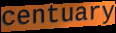
centuary